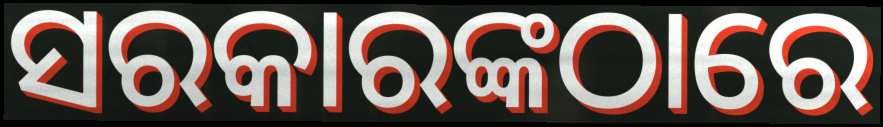
ସରକାରଙ୍କଠାରେ